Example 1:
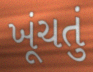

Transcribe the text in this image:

ખૂંચતું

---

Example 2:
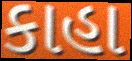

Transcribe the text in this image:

કાહા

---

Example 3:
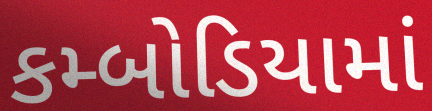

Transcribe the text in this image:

કમ્બોડિયામાં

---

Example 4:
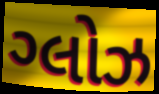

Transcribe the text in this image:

ગ્લોઝ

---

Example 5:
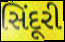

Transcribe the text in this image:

સિંદૂરી